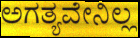
ಅಗತ್ಯವೇನಿಲ್ಲ